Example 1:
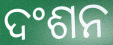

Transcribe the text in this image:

ଦଂଶନ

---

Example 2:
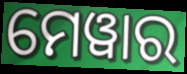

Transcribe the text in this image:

ମେୱାର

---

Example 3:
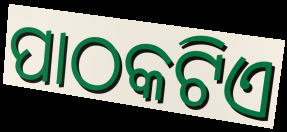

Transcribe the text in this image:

ପାଠକଟିଏ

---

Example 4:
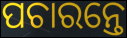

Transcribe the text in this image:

ପଚାରନ୍ତେ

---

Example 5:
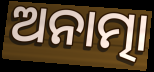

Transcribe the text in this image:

ଅନାତ୍ମା